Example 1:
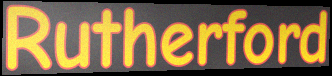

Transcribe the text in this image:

Rutherford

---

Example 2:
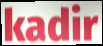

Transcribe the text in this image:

kadir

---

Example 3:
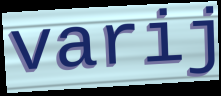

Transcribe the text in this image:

varij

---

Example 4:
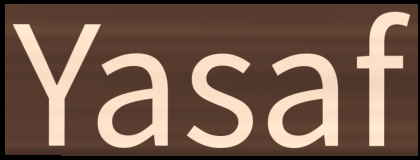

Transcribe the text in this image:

Yasaf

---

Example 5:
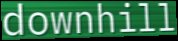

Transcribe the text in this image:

downhill